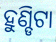
ହୁଣ୍ଡିଟା